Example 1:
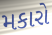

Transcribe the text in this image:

મકારો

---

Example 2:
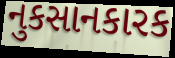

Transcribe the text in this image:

નુકસાનકારક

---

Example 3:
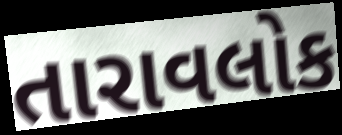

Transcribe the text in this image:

તારાવલોક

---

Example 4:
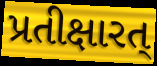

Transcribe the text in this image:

પ્રતીક્ષારત્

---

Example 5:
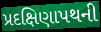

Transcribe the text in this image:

પ્રદક્ષિણાપથની